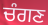
ਚੰਗਣ